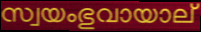
സ്വയംഭുവായാല്